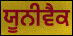
ਯੂਨੀਵੈਕ